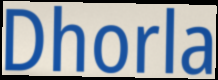
Dhorla